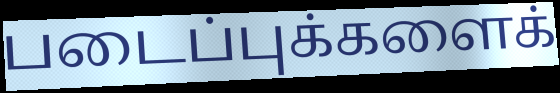
படைப்புக்களைக்